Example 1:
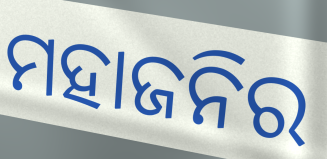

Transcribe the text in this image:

ମହାଜନିର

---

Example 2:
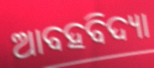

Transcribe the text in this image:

ଆବହବିଦ୍ୟା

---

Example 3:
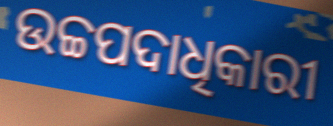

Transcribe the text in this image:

ଉଚ୍ଚପଦାଧିକାରୀ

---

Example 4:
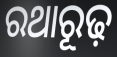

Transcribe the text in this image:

ରଥାରୂଢ଼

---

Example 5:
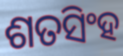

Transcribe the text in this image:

ଶତସିଂହ